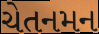
ચેતનમન